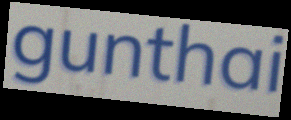
gunthai